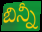
బిన్నీ